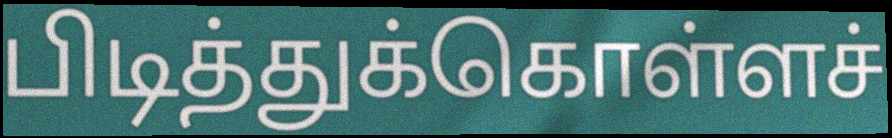
பிடித்துக்கொள்ளச்